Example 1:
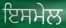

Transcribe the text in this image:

ਇਸਮੇਲ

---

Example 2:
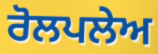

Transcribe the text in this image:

ਰੋਲਪਲੇਅ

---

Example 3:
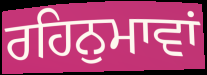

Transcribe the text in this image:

ਰਹਿਨੁਮਾਵਾਂ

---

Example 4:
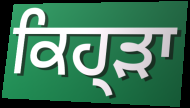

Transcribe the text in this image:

ਕਿਹ੍ੜਾ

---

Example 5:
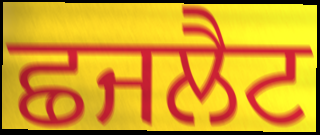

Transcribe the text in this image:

ਛਜਲੈਟ